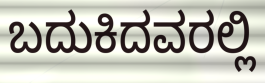
ಬದುಕಿದವರಲ್ಲಿ